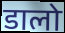
डालो